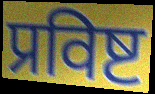
प्रविष्ट